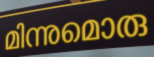
മിന്നുമൊരു